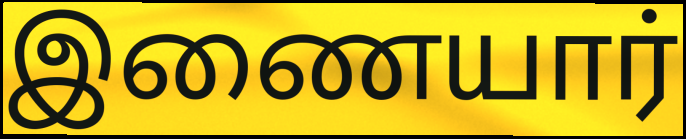
இணையார்